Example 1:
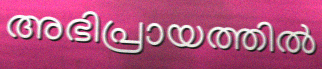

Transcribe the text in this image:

അഭിപ്രായത്തിൽ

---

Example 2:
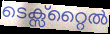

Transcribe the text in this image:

ടെക്സ്റ്റൈൽ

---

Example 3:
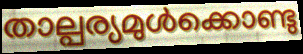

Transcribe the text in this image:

താല്പര്യമുൾക്കൊണ്ടു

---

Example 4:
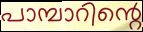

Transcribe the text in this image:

പാമ്പാറിന്റെ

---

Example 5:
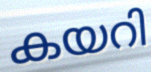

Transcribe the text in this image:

കയറി